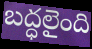
బద్ధలైంది